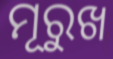
ମୂରୁଖ